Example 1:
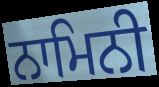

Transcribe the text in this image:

ਨਾਮਿਨੀ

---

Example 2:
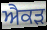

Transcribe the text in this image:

ਐਕੜ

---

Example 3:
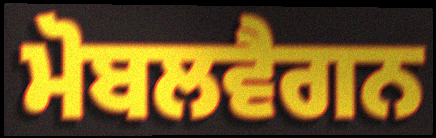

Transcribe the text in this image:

ਮੋਬਲਵੈਗਨ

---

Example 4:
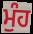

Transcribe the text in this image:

ਮੁੰਹ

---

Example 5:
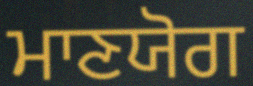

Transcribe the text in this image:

ਮਾਣਯੋਗ